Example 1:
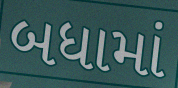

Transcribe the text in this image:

બધામાં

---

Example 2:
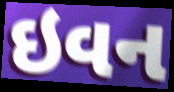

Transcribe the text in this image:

ઇવન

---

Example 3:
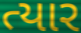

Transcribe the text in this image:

ત્યાર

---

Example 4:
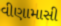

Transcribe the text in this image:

વીણામાસી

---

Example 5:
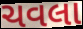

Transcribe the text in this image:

ચવલા